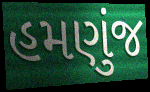
હમણુંજ